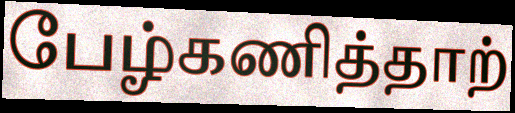
பேழ்கணித்தாற்